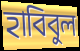
হাবিবুল